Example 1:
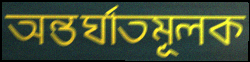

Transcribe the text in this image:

অন্তর্ঘাতমূলক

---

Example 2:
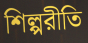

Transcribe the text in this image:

শিল্পরীতি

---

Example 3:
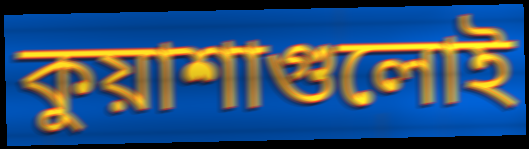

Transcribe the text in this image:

কুয়াশাগুলোই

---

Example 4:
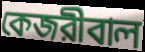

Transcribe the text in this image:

কেজরীবাল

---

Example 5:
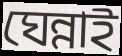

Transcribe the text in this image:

ঘেন্নাই